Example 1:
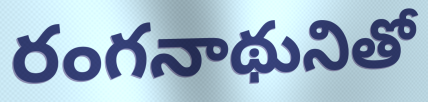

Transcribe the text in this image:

రంగనాథునితో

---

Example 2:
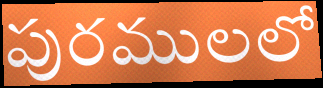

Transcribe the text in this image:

పురములలో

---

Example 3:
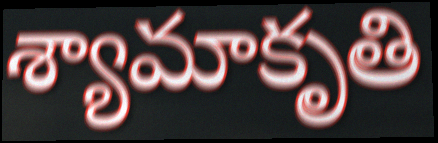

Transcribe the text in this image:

శ్యామాకృతి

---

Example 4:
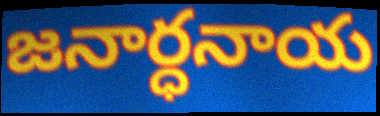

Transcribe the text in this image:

జనార్ధనాయ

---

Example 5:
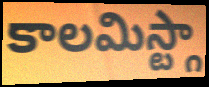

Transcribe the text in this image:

కాలమిస్ట్గా